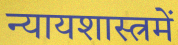
न्यायशास्त्रमें